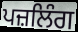
ਪਜ਼ਲਿੰਗ